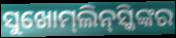
ସୁଖୋମ୍‌ଲିନ୍‌ସ୍କିଙ୍କର